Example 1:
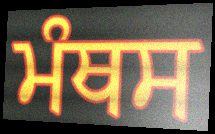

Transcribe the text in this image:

ਮੰਥਸ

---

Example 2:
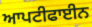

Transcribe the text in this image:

ਆਪਟੀਫਾਈਨ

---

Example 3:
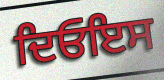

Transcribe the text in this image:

ਦਿਓਇਸ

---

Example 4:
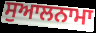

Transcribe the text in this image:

ਸੁਆਲਨਾਮਾ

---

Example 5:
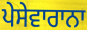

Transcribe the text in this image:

ਪੇਸੇਵਾਰਾਨਾ